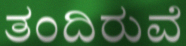
ತಂದಿರುವೆ